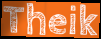
Theik